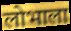
लोभाला